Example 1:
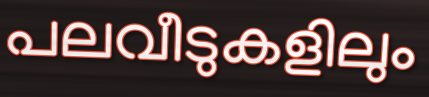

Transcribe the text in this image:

പലവീടുകളിലും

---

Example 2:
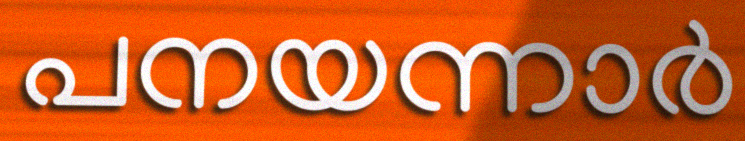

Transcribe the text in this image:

പനയന്നാർ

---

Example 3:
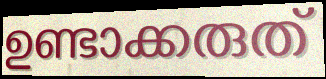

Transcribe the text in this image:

ഉണ്ടാക്കരുത്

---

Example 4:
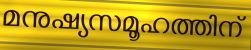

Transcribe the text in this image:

മനുഷ്യസമൂഹത്തിന്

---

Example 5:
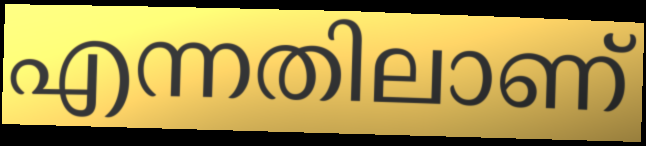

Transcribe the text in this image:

എന്നതിലാണ്